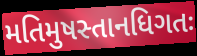
મતિમુષસ્તાનધિગતઃ